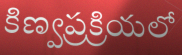
కిణ్వప్రక్రియలో